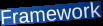
Framework